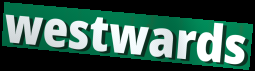
westwards